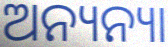
ଅନ୍ୟନ୍ୟା